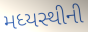
મધ્યસ્થીની